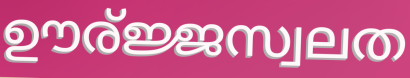
ഊര്ജ്ജസ്വലത